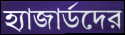
হ্যাজার্ডদের